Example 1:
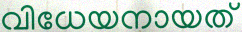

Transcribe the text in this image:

വിധേയനായത്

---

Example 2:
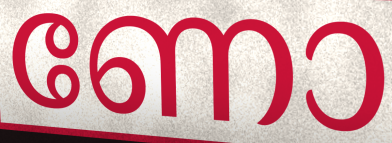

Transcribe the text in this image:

ണോ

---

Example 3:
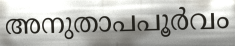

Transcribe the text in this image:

അനുതാപപൂർവം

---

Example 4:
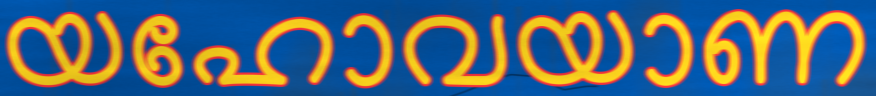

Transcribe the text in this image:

യഹോവയാണ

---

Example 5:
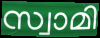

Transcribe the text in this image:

സ്വാമി